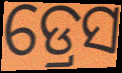
ଡ୍ରେସ